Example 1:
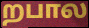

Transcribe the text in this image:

றபால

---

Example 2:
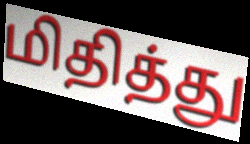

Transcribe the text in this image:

மிதித்து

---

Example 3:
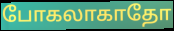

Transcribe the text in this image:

போகலாகாதோ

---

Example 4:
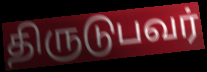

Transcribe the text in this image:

திருடுபவர்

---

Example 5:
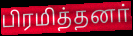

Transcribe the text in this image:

பிரமித்தனர்